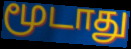
மூடாது